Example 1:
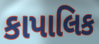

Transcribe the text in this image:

કાપાલિક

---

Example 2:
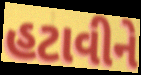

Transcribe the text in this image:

હટાવીને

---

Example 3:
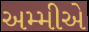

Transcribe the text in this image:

અમ્મીએ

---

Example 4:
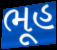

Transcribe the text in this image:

ભૂહ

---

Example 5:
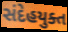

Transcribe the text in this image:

સંદેહયુક્ત